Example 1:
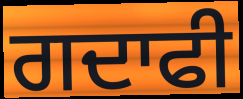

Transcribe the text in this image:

ਗਦਾਫੀ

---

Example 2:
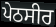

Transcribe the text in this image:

ਪੇਠਸੀਰ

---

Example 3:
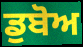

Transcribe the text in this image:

ਡੁਬੋਅ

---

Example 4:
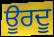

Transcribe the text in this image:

ਊਰਦੂ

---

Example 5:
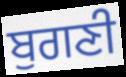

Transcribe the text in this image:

ਬੁਗਣੀ